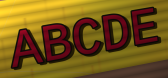
ABCDE